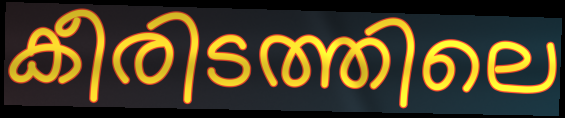
കീരിടത്തിലെ